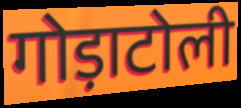
गोड़ाटोली